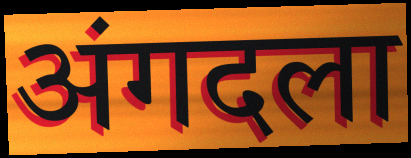
अंगदला